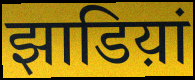
झाडिय़ां